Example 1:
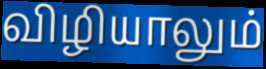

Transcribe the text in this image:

விழியாலும்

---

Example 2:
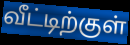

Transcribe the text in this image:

வீட்டிற்குள்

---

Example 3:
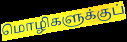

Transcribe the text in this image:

மொழிகளுக்குப்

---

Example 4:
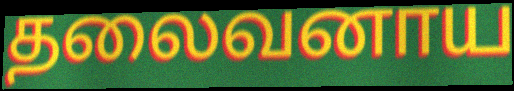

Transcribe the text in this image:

தலைவனாய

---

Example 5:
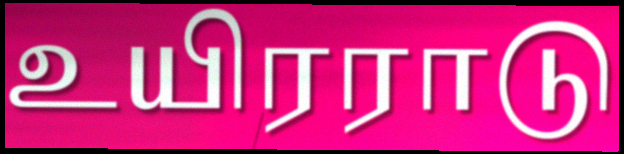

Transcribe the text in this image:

உயிரராடு